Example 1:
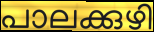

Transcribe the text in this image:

പാലക്കുഴി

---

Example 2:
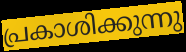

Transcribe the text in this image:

പ്രകാശിക്കുന്നു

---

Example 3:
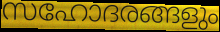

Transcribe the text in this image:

സഹോദരങ്ങളും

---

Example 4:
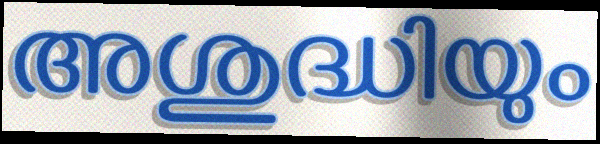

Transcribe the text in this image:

അശുദ്ധിയും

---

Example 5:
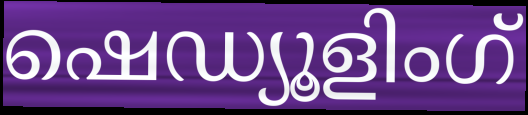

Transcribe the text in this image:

ഷെഡ്യൂളിംഗ്